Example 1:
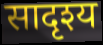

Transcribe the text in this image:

सादृश्य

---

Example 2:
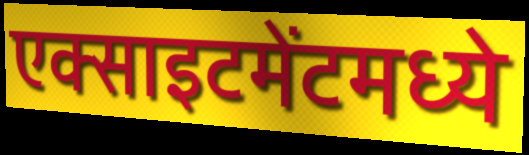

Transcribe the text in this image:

एक्साइटमेंटमध्ये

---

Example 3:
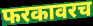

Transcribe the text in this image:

फरकावरच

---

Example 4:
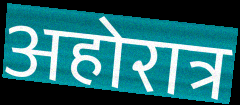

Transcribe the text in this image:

अहोरात्र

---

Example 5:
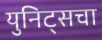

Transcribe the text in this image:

युनिट्सचा